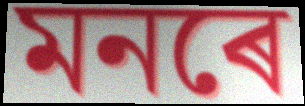
মনৰে